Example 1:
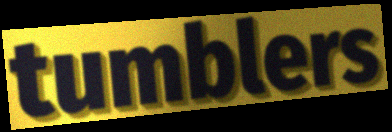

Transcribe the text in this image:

tumblers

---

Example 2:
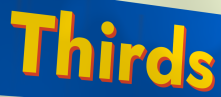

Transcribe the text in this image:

Thirds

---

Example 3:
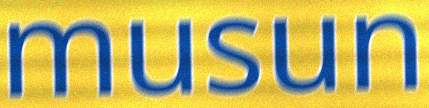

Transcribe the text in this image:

musun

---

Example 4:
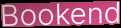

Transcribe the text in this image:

Bookend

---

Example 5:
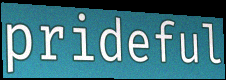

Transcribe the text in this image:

prideful